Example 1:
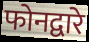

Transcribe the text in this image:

फोनद्वारे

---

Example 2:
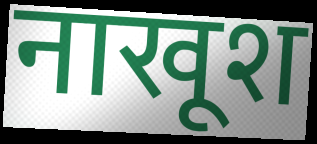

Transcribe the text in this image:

नाखूश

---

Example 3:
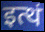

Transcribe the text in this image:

इत्थं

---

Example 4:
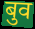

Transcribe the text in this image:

बुव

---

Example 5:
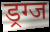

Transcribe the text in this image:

ड्रग्ज